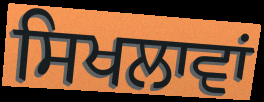
ਸਿਖਲਾਵਾਂ